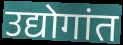
उद्योगांत